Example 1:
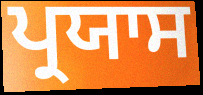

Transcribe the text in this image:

ਪ੍ਰਯਾਸ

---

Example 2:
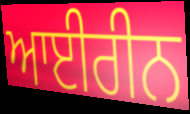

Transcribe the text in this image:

ਆਈਰੀਨ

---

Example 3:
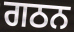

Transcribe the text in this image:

ਗਠਨ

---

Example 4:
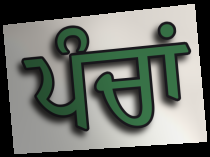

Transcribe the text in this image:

ਪੰਚਾਂ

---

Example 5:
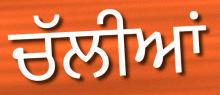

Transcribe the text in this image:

ਚੱਲੀਆਂ